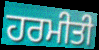
ਹਰਮੀਤੀ